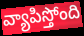
వ్యాపిస్తోంది